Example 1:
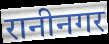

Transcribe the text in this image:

रानीनगर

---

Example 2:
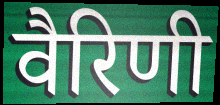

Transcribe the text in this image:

वैरिणी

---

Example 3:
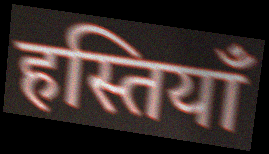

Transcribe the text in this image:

हस्तियॉं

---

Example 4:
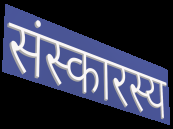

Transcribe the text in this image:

संस्कारस्य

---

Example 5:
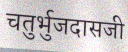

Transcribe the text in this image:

चतुर्भुजदासजी